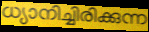
ധ്യാനിച്ചിരിക്കുന്ന